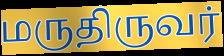
மருதிருவர்